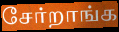
சேர்றாங்க